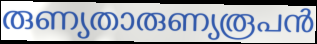
രുണ്യതാരുണ്യരൂപൻ